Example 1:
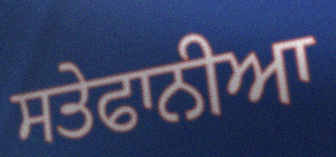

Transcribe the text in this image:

ਸਤੇਫਾਨੀਆ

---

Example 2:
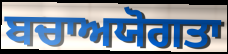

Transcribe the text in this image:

ਬਚਾਅਯੋਗਤਾ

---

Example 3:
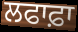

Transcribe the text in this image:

ਲਫਾਫ਼ਾ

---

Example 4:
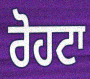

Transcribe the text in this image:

ਰੋਹਟਾ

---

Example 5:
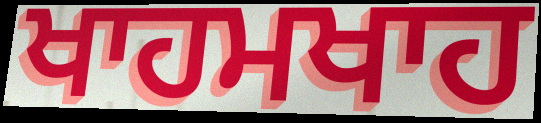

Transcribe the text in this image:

ਖਾਹਮਖਾਹ